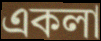
একলা